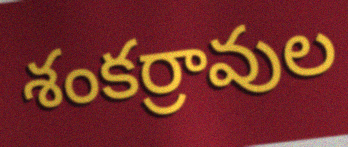
శంకర్రావుల